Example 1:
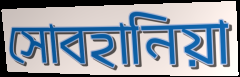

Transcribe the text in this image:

সোবহানিয়া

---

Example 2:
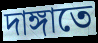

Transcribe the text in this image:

দাঙ্গাতে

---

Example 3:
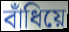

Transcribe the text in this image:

বাঁধিয়ে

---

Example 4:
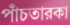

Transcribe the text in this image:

পাঁচতারকা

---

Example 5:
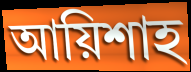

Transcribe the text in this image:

আয়িশাহ